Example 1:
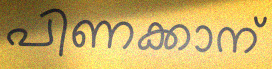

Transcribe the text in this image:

പിണക്കാന്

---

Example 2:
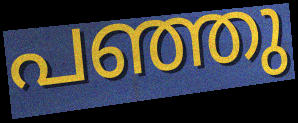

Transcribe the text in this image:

പഞ്ഞു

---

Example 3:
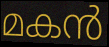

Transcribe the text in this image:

മകൻ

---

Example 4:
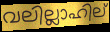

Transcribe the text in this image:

വലില്ലാഹില്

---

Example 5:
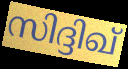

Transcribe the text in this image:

സിദ്ദിഖ്